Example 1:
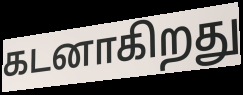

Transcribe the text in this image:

கடனாகிறது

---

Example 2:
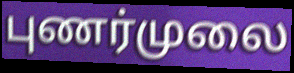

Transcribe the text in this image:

புணர்முலை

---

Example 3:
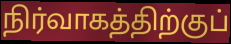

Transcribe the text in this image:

நிர்வாகத்திற்குப்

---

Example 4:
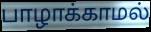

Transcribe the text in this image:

பாழாக்காமல்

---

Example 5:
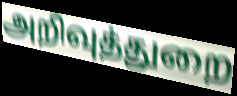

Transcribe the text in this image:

அறிவுத்துறை